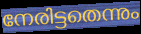
നേരിട്ടതെന്നും